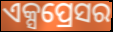
ଏକ୍ସପ୍ରେସର